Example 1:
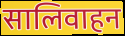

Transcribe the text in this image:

सालिवाहन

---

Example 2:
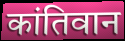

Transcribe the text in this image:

कांतिवान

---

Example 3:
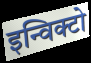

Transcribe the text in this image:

इन्विक्टो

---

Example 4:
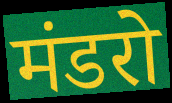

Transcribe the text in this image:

मंडरो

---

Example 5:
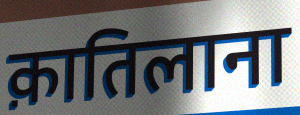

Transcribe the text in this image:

क़ातिलाना